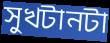
সুখটানটা